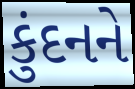
કુંદનને